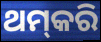
ଥମ୍‌କରି